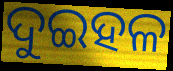
ଦୁଇହଳ